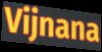
Vijnana